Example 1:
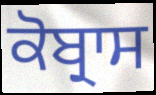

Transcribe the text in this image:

ਕੋਬ੍ਰਾਸ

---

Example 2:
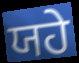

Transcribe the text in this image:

ਯਹੇ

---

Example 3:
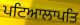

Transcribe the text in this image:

ਪਟਿਆਲਾਪਤਿ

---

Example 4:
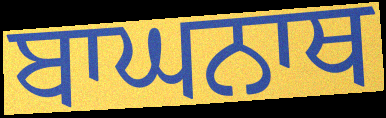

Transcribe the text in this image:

ਬਾਘਨਾਥ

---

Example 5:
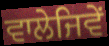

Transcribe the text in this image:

ਵਾਲੇਜਿਵੇਂ